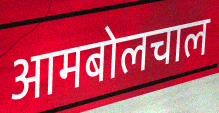
आमबोलचाल